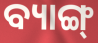
ବ୍ୟାଙ୍ଗ୍